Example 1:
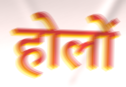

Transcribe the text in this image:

होलों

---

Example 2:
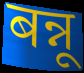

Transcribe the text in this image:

बन्नू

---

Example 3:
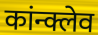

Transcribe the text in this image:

कांन्क्लेव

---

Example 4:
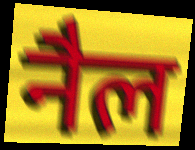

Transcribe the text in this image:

नैल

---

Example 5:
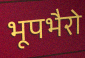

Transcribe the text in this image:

भूपभैरो